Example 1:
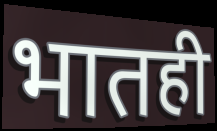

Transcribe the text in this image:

भातही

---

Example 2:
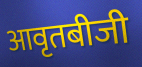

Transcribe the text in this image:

आवृतबीजी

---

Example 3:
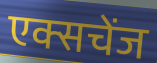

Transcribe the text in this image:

एक्सचेंज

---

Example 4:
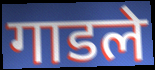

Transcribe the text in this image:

गाडले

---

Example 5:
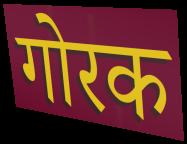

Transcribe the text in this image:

गोरक